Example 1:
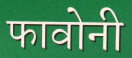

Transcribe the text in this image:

फावोनी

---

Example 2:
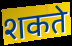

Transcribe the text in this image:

शकते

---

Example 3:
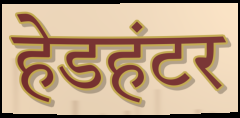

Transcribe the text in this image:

हेडहंटर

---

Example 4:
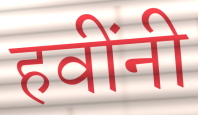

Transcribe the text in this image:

हवींनी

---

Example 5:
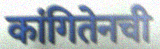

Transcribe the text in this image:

कांगितेनची